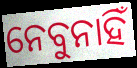
ନେବୁନାହିଁ